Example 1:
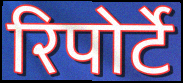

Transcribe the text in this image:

रिपोर्टे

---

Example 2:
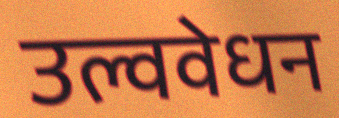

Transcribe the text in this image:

उल्ववेधन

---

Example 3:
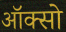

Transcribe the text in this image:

ऑक्सो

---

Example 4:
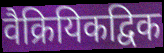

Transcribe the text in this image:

वैक्रियिकद्विक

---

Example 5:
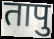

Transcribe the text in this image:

तापु